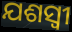
ଯଶସ୍ବୀ